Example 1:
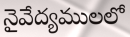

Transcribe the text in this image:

నైవేద్యములలో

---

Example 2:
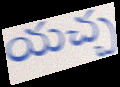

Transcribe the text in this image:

యచ్చ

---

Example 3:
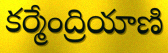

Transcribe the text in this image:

కర్మేంద్రియాణి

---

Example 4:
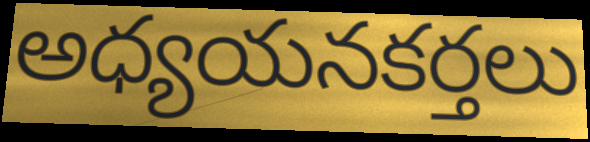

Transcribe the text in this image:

అధ్యయనకర్తలు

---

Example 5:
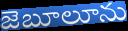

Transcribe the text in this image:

జెబూలూను